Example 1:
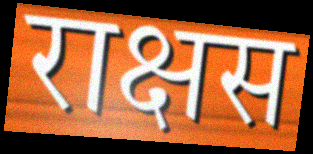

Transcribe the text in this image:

राक्षस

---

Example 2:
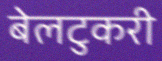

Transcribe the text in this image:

बेलटुकरी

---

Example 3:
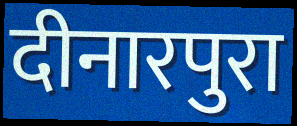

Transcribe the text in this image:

दीनारपुरा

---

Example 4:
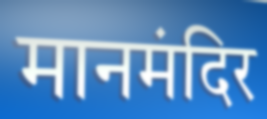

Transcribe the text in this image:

मानमंदिर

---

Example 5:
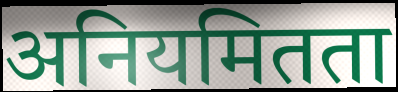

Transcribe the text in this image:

अनियमितता